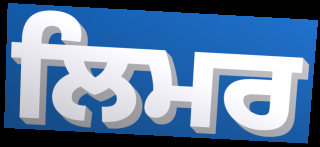
ਲਿਮਰ